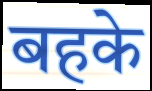
बहके